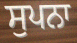
ਸੁਪਨਾ